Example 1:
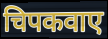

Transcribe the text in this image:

चिपकवाए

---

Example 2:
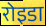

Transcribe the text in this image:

रोइडा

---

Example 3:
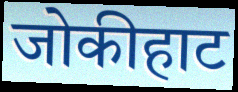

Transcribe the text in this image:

जोकीहाट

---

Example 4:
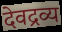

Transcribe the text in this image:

देवद्रव्य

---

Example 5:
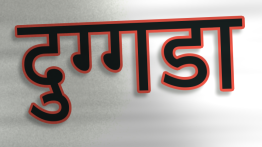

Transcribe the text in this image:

दुग्गडा